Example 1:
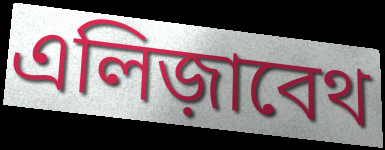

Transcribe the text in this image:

এলিজ়াবেথ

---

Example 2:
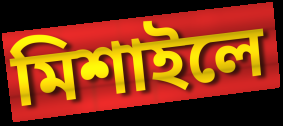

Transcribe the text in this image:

মিশাইলে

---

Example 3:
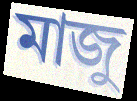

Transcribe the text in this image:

মাজু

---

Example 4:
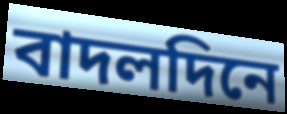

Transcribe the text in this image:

বাদলদিনে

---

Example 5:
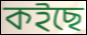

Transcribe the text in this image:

কইছে